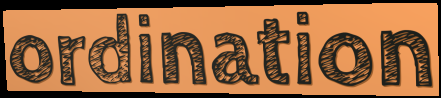
ordination